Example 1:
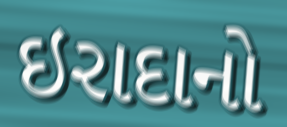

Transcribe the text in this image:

ઇરાદાનો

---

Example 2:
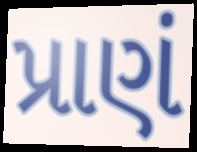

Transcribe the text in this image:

પ્રાણં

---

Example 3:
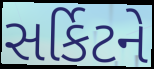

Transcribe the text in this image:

સર્કિટને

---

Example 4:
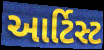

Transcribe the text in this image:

આર્ટિસ્ટ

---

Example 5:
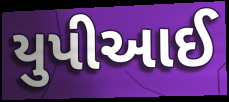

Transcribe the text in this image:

યુપીઆઈ